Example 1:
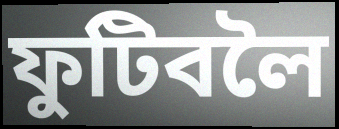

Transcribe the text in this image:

ফুটিবলৈ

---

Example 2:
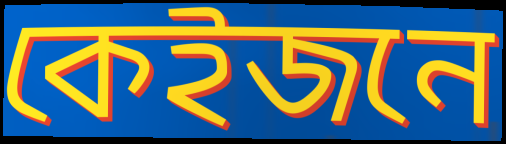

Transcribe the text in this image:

কেইজনে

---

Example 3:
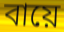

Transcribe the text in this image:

বায়ে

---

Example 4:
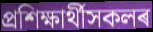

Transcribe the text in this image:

প্ৰশিক্ষাৰ্থীসকলৰ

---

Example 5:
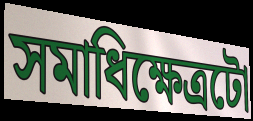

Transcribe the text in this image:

সমাধিক্ষেত্ৰটো